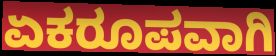
ಏಕರೂಪವಾಗಿ